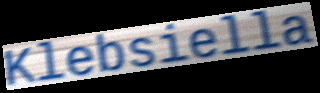
Klebsiella